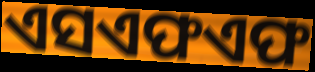
ଏସଏଫଏଫ